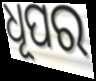
ଧୂପର